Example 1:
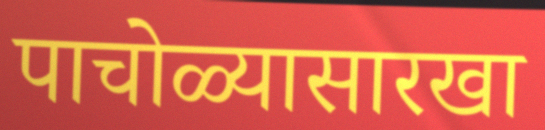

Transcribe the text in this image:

पाचोळ्यासारखा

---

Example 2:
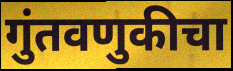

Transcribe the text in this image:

गुंतवणुकीचा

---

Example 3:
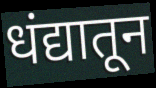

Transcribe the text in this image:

धंद्यातून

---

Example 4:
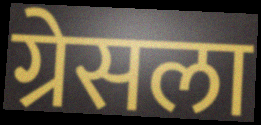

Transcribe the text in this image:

ग्रेसला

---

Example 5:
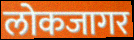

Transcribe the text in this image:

लोकजागर